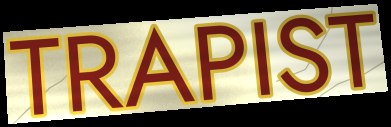
TRAPIST